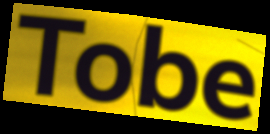
Tobe